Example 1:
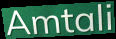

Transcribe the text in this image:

Amtali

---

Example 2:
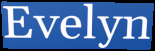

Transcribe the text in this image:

Evelyn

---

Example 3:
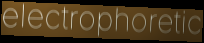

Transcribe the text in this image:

electrophoretic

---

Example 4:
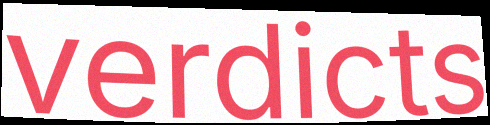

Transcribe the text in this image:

verdicts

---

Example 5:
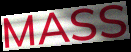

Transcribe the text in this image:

MASS